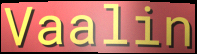
Vaalin